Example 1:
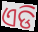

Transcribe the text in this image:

ଏଡି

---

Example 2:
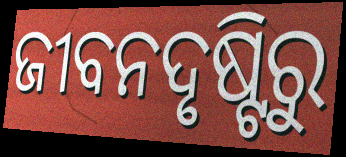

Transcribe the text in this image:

ଜୀବନଦୃଷ୍ଟିରୁ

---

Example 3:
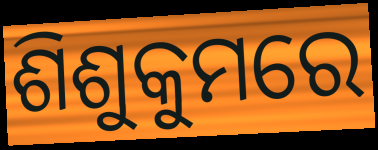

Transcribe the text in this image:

ଶିଶୁକୁମରେ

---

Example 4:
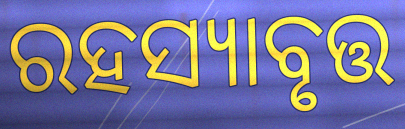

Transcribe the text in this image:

ରହସ୍ୟାବୃତ୍ତ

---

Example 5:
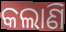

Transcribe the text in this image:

କଲାଣି